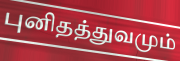
புனிதத்துவமும்